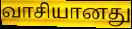
வாசியானது